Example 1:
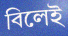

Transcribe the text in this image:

বিলেই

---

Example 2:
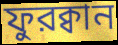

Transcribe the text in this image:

ফুরক্বান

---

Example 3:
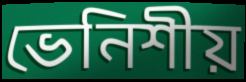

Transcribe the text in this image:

ভেনিশীয়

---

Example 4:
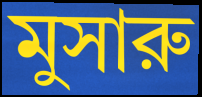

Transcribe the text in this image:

মুসারু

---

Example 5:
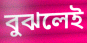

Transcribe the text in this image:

বুঝলেই